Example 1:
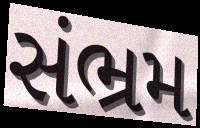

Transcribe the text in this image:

સંભ્રમ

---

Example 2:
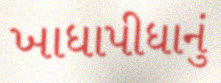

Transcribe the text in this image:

ખાધાપીધાનું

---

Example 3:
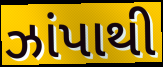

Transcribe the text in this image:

ઝાંપાથી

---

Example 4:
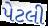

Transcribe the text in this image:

પેટલી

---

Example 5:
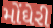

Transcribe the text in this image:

મોંઘેરી